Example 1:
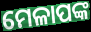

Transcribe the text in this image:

ମେଳାପଙ୍କ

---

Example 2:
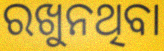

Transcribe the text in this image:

ରଖୁନଥିବା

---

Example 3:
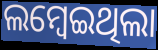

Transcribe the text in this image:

ଲମ୍ବେଇଥିଲା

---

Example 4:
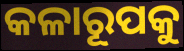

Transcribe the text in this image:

କଳାରୂପକୁ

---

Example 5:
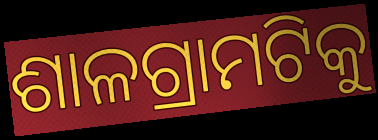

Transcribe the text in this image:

ଶାଳଗ୍ରାମଟିକୁ